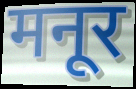
मनूर